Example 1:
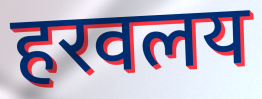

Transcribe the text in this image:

हरवलय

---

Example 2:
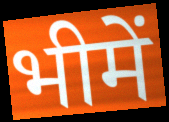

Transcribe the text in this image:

भीमें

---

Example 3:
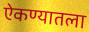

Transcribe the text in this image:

ऐकण्यातला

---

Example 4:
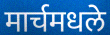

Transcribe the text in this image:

मार्चमधले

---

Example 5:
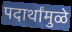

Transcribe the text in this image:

पदार्थांमुळे